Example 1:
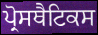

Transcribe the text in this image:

ਪ੍ਰੋਸਥੈਟਿਕਸ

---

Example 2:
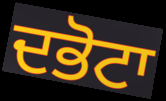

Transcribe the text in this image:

ਦਭੋਟਾ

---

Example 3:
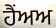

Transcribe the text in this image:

ਹੈਂਅਅ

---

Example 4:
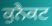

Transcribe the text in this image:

ਕੁਨੈਕਟ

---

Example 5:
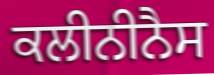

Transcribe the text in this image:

ਕਲੀਨੀਨੈਸ